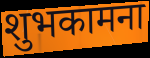
शुभकामना